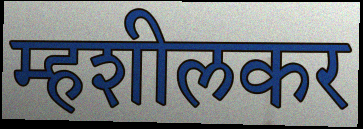
म्हशीलकर